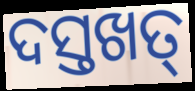
ଦସ୍ତଖତ୍